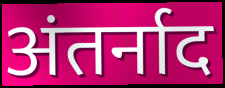
अंतर्नाद